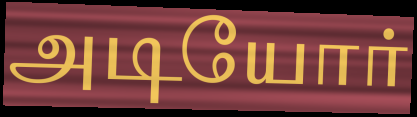
அடியோர்